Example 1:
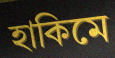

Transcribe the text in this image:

হাকিমে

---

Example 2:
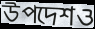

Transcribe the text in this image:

উপদেশও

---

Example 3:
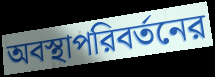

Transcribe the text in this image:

অবস্থাপরিবর্তনের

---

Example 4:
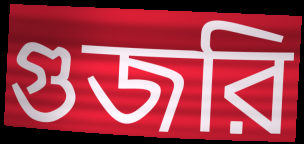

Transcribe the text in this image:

গুজরি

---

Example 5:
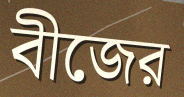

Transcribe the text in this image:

বীজের